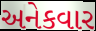
અનેકવાર